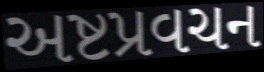
અષ્ટપ્રવચન